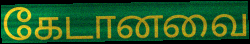
கேடானவை